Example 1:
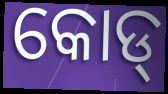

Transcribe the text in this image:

କୋଡ୍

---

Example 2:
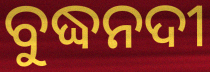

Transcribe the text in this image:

ବୁଦ୍ଧନଦୀ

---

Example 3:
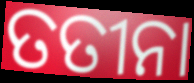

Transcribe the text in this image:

ତତୀନା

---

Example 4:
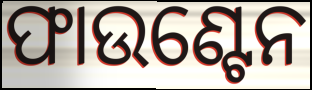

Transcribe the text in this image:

ଫାଉଣ୍ଟେନ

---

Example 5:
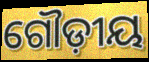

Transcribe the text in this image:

ଗୌଡ଼ୀୟ